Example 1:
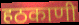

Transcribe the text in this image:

हठकाणी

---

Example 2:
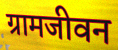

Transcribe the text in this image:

ग्रामजीवन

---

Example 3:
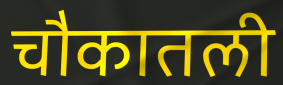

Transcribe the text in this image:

चौकातली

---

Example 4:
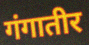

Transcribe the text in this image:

गंगातीर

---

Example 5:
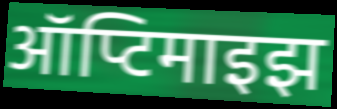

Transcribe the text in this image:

ऑप्टिमाइझ